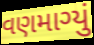
વણમાગ્યું